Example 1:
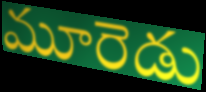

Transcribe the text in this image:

మూరెడు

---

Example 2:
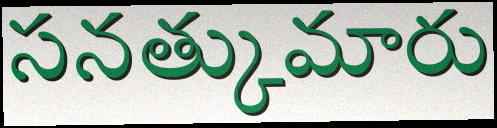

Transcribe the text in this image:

సనత్కుమారు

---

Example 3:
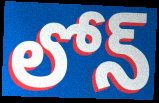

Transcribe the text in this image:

లోన్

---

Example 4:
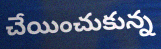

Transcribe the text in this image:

చేయించుకున్న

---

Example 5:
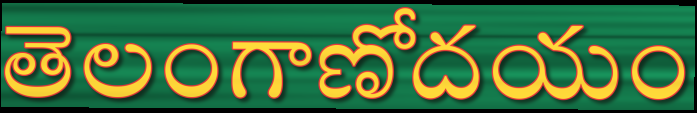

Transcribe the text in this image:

తెలంగాణోదయం